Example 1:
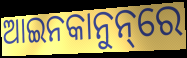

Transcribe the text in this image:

ଆଇନକାନୁନ୍‌ରେ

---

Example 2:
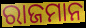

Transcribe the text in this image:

ରାଜମାନ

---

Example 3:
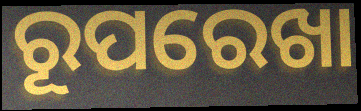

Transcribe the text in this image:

ରୂପରେଖା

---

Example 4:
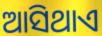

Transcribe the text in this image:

ଆସିଥାଏ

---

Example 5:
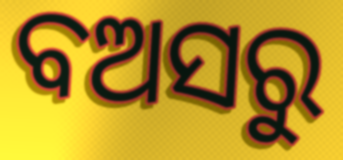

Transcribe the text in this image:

ବଅସରୁ